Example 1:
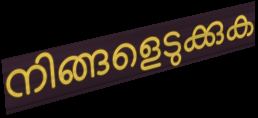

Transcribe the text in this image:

നിങ്ങളെടുക്കുക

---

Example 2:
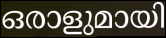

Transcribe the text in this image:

ഒരാളുമായി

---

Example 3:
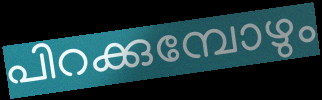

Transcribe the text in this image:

പിറക്കുമ്പോഴും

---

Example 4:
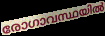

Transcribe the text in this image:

രോഗാവസ്ഥയിൽ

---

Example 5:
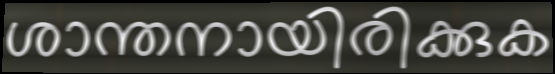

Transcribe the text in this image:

ശാന്തനായിരിക്കുക